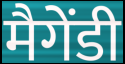
मैगेंडी